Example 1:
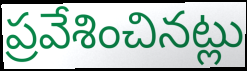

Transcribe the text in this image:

ప్రవేశించినట్లు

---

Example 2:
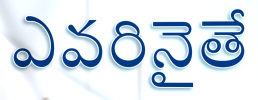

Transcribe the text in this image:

ఎవరినైతే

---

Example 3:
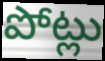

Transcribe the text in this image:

పోట్లు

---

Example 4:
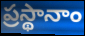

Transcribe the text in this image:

ప్రస్థానాం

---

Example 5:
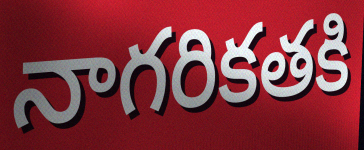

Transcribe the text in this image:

నాగరికతకి